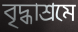
বৃদ্ধাশ্রমে